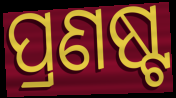
ପ୍ରଣଷ୍ଟ